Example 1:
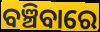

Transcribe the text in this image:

ବଞ୍ଚିବାରେ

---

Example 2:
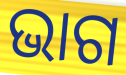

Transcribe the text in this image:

ଭାଗ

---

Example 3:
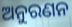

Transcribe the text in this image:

ଅନୁରଣନ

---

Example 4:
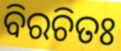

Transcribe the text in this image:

ବିରଚିତଃ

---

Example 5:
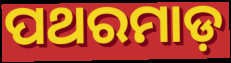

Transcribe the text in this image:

ପଥରମାଡ଼